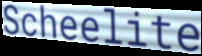
Scheelite